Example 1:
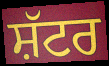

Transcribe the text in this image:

ਸ਼ੱਟਰ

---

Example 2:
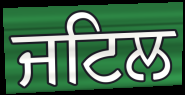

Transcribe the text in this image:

ਜਟਿਲ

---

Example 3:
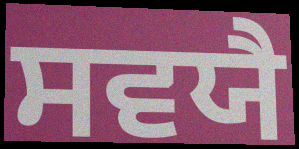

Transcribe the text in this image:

ਸਵਯੈ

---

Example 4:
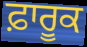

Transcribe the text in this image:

ਫ਼ਾਰੂਕ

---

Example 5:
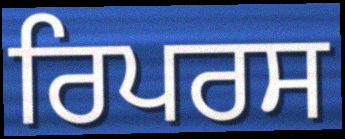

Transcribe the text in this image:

ਰਿਪਰਸ